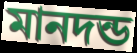
মানদন্ড